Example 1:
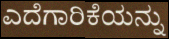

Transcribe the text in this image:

ಎದೆಗಾರಿಕೆಯನ್ನು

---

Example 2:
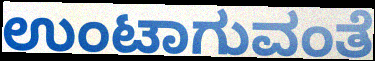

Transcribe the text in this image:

ಉಂಟಾಗುವಂತೆ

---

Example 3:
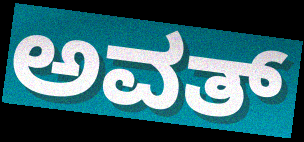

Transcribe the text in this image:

ಅವತ್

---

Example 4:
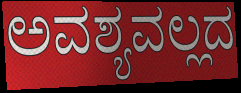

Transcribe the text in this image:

ಅವಶ್ಯವಲ್ಲದ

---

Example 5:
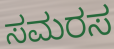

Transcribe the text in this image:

ಸಮರಸ